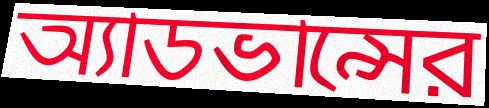
অ্যাডভান্সের